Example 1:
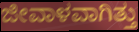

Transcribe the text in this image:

ಜೀವಾಳವಾಗಿತ್ತು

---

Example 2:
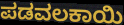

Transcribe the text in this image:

ಪಡವಲಕಾಯಿ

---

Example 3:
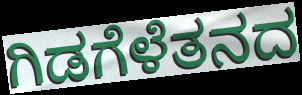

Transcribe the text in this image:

ಗಿಡಗೆಳೆತನದ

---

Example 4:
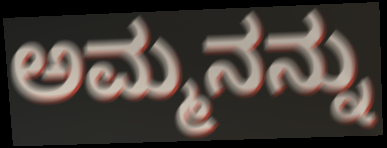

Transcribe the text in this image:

ಅಮ್ಮನನ್ನು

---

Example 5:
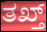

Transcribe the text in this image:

ತಖ್ತ್